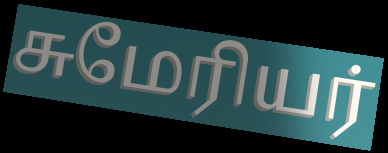
சுமேரியர்